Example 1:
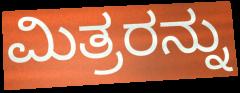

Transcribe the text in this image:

ಮಿತ್ರರನ್ನು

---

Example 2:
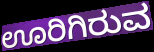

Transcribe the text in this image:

ಊರಿಗಿರುವ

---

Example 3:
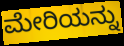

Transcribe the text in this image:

ಮೇರಿಯನ್ನು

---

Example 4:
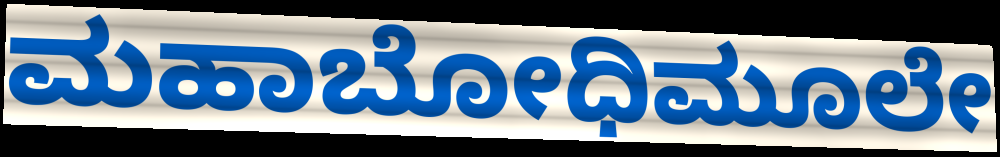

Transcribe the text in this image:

ಮಹಾಬೋಧಿಮೂಲೇ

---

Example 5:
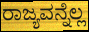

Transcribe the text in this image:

ರಾಜ್ಯವನ್ನೆಲ್ಲ